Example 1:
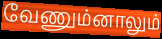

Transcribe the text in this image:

வேணும்னாலும்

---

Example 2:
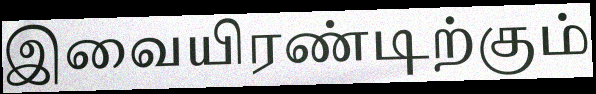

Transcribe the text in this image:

இவையிரண்டிற்கும்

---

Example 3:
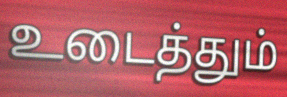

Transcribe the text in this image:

உடைத்தும்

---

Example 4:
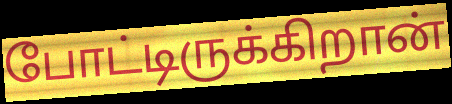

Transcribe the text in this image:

போட்டிருக்கிறான்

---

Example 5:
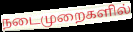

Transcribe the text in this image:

நடைமுறைகளில்